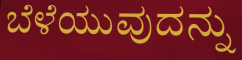
ಬೆಳೆಯುವುದನ್ನು